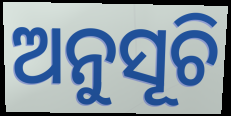
ଅନୁସୂଚି